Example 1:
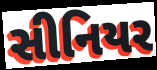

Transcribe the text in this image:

સીનિયર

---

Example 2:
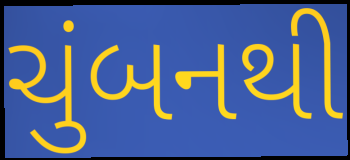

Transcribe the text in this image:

ચુંબનથી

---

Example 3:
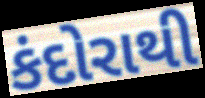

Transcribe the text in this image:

કંદોરાથી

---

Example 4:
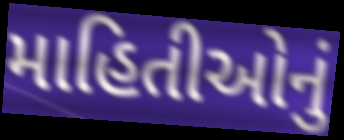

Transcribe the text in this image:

માહિતીઓનું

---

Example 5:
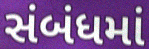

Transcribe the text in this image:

સંબંધમાં